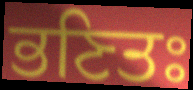
ਭਣਿਤਃ